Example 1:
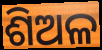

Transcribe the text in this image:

ଶିଅଳ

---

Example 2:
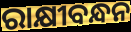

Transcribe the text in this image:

ରାକ୍ଷୀବନ୍ଧନ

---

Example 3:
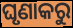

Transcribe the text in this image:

ଘୃଣାକରୁ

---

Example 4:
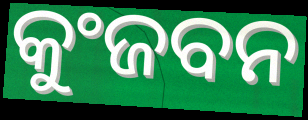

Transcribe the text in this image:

କୁଂଜବନ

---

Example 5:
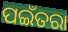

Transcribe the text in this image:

ପଇଁତରା